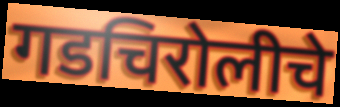
गडचिरोलीचे